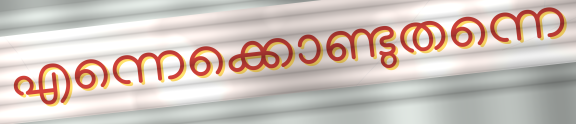
എന്നെക്കൊണ്ടുതന്നെ